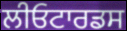
ਲੀਓਟਾਰਡਸ